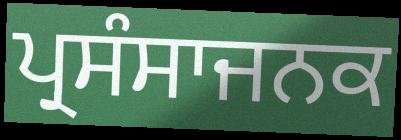
ਪ੍ਰਸੰਸਾਜਨਕ